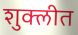
शुक्लीत